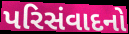
પરિસંવાદનો